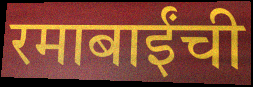
रमाबाईंची